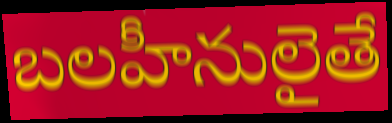
బలహీనులైతే